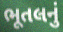
ભૂતલનું